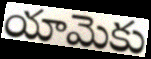
యామెకు